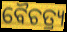
ବୈଚତ୍ର୍ୟ